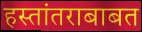
हस्तांतराबाबत